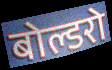
बोल्डरो